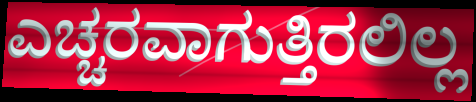
ಎಚ್ಚರವಾಗುತ್ತಿರಲಿಲ್ಲ